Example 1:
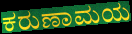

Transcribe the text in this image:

ಕರುಣಾಮಯ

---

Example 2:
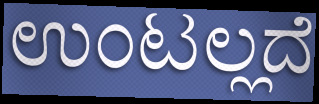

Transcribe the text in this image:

ಉಂಟಲ್ಲದೆ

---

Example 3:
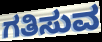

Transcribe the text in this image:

ಗತಿಸುವ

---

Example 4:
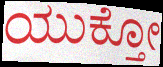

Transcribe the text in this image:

ಯುಕ್ತೋ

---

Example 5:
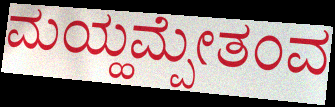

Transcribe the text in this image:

ಮಯ್ಹಮ್ಪೇತಂವ